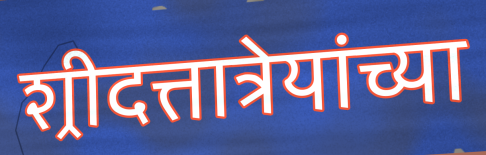
श्रीदत्तात्रेयांच्या